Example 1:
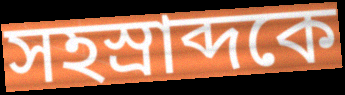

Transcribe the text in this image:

সহস্রাব্দকে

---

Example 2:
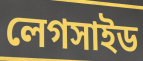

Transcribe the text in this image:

লেগসাইড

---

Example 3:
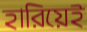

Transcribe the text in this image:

হারিয়েই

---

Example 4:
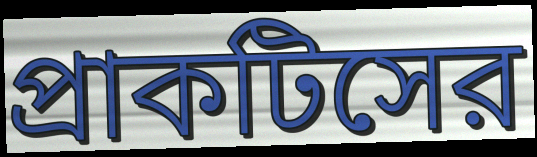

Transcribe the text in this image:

প্রাকটিসের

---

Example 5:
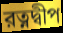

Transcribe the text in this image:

রত্নদ্বীপ